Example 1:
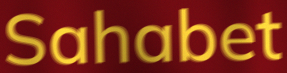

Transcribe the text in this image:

Sahabet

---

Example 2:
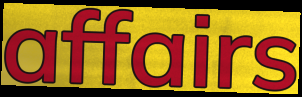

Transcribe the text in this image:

affairs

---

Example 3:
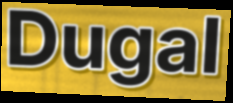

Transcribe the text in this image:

Dugal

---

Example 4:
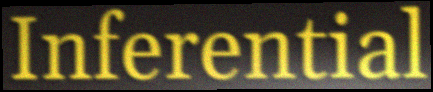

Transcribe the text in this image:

Inferential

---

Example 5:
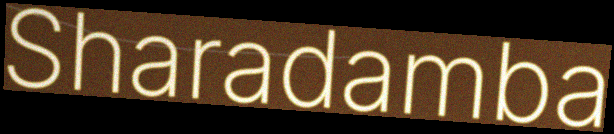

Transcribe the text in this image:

Sharadamba